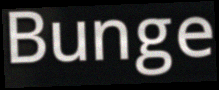
Bunge